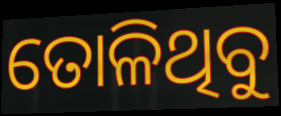
ତୋଳିଥିବୁ